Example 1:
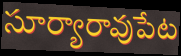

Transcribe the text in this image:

సూర్యారావుపేట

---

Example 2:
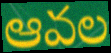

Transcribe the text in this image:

ఆవల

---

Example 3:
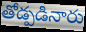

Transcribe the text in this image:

తోడ్పడినారు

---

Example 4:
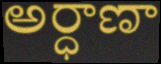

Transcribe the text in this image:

అర్ధాణా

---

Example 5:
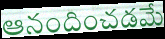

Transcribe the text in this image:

ఆనందించడమే